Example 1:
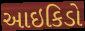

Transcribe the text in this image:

આઇકિડો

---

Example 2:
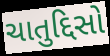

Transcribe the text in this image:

ચાતુદ્દિસો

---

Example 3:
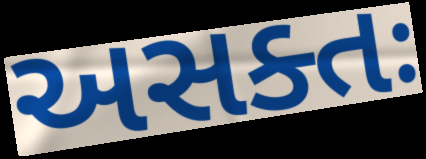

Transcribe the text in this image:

અસક્તઃ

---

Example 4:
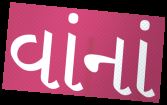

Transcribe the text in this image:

વાંનાં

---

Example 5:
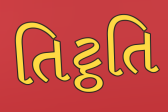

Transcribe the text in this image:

તિટ્ઠતિ